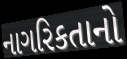
નાગરિકતાનો